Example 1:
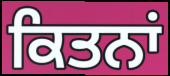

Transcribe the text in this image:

ਕਿਤਨਾਂ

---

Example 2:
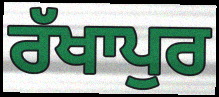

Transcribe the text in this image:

ਰੱਖਾਪੁਰ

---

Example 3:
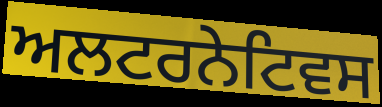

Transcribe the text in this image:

ਅਲਟਰਨੇਟਿਵਸ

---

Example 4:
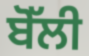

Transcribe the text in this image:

ਬੋੱਲੀ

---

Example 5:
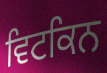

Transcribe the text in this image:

ਵਿਟਕਿਨ